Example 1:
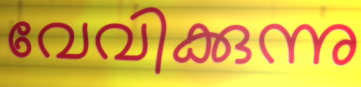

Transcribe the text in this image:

വേവിക്കുന്നു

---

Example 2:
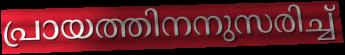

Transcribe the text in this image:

പ്രായത്തിനനുസരിച്ച്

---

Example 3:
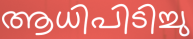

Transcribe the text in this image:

ആധിപിടിച്ചു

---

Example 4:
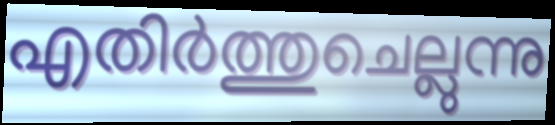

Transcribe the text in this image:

എതിർത്തുചെല്ലുന്നു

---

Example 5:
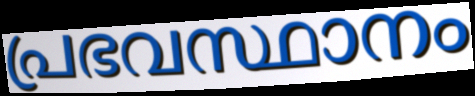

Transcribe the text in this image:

പ്രഭവസ്ഥാനം